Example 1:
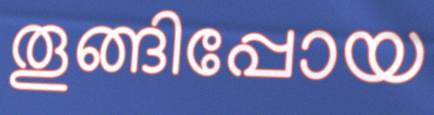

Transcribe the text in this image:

തൂങ്ങിപ്പോയ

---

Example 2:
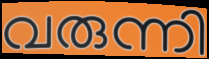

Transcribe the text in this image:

വരുന്നി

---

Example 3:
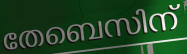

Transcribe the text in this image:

തേബെസിന്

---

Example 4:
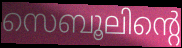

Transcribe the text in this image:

സെബൂലിന്റെ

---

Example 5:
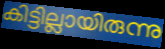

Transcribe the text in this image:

കിട്ടില്ലായിരുന്നു